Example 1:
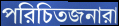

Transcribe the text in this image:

পরিচিতজনারা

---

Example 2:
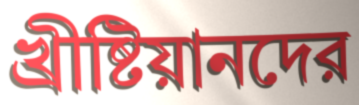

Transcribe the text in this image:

খ্রীষ্টিয়ানদের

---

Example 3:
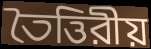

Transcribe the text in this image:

তৈত্তিরীয়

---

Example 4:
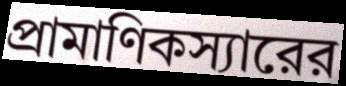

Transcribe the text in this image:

প্রামাণিকস্যারের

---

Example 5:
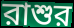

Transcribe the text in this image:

রাশুর